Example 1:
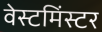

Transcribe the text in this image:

वेस्‍टमिंस्‍टर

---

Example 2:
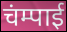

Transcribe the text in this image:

चंम्पाई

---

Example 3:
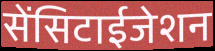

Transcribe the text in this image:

सेंसिटाईजेशन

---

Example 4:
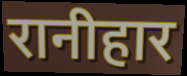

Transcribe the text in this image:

रानीहार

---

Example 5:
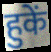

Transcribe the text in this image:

हुकें